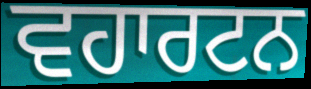
ਵਹਾਰਟਨ